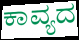
ಕಾವ್ಯದ